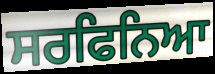
ਸਰਫਿਨਿਆ